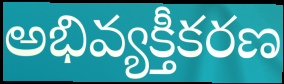
అభివ్యక్తీకరణ